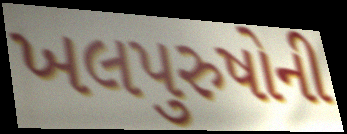
ખલપુરુષોની